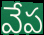
వేప